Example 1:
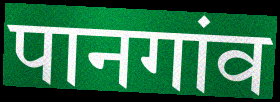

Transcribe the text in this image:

पानगांव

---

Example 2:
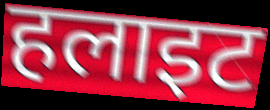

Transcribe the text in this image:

हलाइट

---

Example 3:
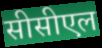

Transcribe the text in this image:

सीसीएल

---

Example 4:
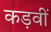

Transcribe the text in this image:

कड़वीं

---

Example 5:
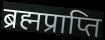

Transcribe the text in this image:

ब्रह्मप्राप्ति